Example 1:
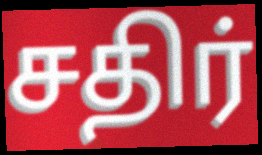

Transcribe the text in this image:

சதிர்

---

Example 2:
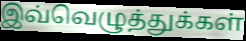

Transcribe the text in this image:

இவ்வெழுத்துக்கள்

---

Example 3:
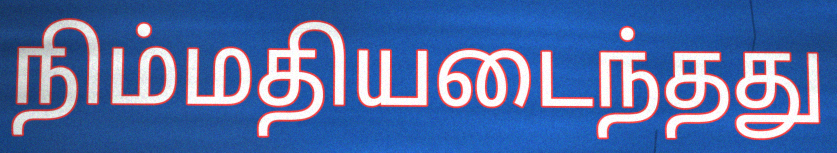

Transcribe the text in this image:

நிம்மதியடைந்தது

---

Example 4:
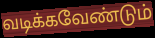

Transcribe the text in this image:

வடிக்கவேண்டும்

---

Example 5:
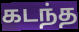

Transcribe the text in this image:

கடந்த